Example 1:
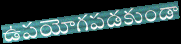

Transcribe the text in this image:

ఉపయోగపడకుండా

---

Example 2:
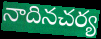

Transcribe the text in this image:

నాదినచర్య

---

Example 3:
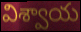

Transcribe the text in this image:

విశ్వాయ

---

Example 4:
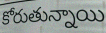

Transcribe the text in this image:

కోరుతున్నాయి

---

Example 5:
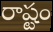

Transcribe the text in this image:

రాష్టం